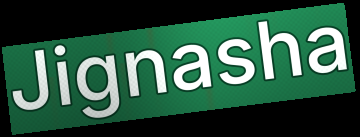
Jignasha